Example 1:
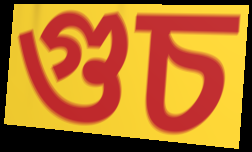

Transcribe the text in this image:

গুচ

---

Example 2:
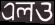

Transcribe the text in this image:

এলও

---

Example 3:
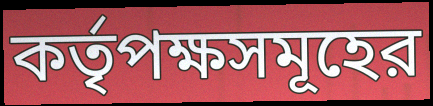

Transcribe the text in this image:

কর্তৃপক্ষসমূহের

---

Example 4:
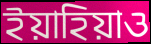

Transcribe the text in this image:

ইয়াহিয়াও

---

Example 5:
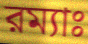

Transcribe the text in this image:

রম্যাঃ